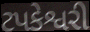
ટપકેશ્વરી